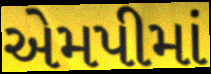
એમપીમાં